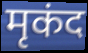
मृकंद